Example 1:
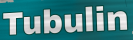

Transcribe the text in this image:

Tubulin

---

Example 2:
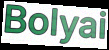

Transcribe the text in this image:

Bolyai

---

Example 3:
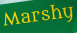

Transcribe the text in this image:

Marshy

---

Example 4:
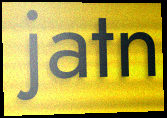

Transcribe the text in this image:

jatn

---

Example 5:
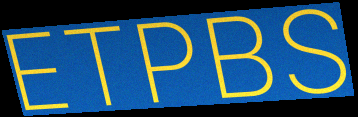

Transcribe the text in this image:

ETPBS